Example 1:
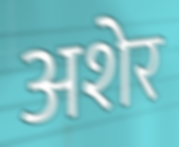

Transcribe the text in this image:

अशेर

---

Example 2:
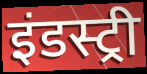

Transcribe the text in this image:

इंडस्ट्री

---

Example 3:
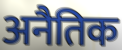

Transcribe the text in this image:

अनैतिक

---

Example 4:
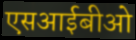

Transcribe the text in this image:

एसआईबीओ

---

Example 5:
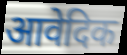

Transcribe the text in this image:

आवेदिक